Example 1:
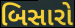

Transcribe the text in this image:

બિસારો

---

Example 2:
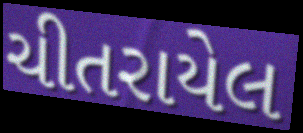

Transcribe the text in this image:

ચીતરાયેલ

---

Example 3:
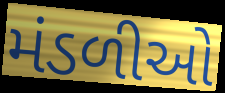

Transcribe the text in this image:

મંડળીઓ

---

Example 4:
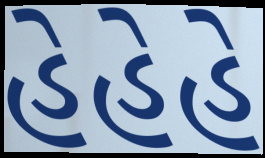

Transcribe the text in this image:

હેહેહે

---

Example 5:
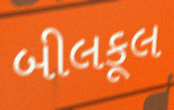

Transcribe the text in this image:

બીલકૂલ